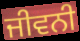
ਜੀਵਨੀ